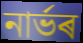
নাৰ্ভৰ